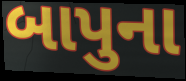
બાપુના